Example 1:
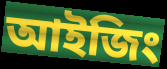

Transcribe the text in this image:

আইজিং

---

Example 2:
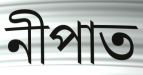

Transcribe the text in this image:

নীপাত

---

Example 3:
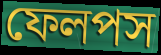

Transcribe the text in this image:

ফেলপস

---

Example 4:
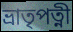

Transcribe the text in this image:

ভ্রাতৃপত্নী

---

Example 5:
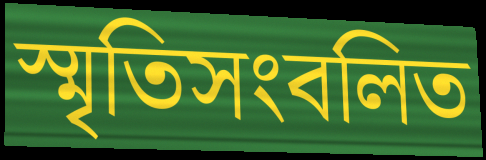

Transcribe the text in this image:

স্মৃতিসংবলিত